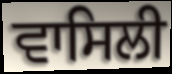
ਵਾਸਿਲੀ